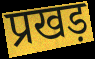
प्रखड़